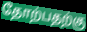
தோற்பதற்கு